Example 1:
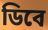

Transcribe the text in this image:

ডিবে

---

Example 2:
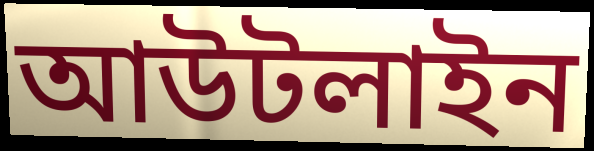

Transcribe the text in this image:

আউটলাইন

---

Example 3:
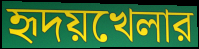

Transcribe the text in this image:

হৃদয়খেলার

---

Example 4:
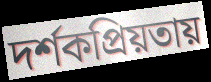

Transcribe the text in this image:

দর্শকপ্রিয়তায়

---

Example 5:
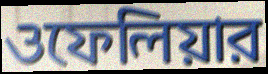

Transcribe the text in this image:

ওফেলিয়ার